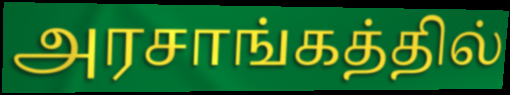
அரசாங்கத்தில்